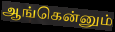
ஆங்கென்னும்